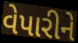
વેપારીને